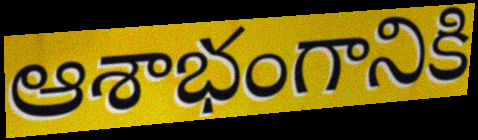
ఆశాభంగానికి